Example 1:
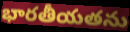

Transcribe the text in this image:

భారతీయతను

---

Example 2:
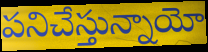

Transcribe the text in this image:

పనిచేస్తున్నాయో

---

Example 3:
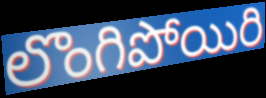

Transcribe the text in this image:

లొంగిపోయిరి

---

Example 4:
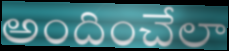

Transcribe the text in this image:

అందించేలా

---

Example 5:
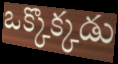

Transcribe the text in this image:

ఒక్కొక్కడు